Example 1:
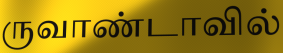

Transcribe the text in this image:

ருவாண்டாவில்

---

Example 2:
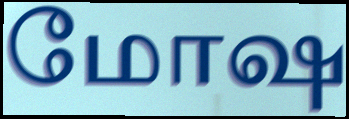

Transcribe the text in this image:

மோஷ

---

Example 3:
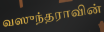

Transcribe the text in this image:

வஸுந்தராவின்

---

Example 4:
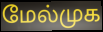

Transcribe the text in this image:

மேல்முக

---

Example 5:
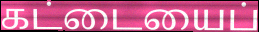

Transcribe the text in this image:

கட்டையைப்